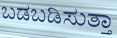
ಬಡಬಡಿಸುತ್ತಾ